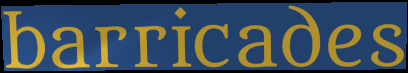
barricades